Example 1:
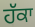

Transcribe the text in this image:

ਹੱਕਾ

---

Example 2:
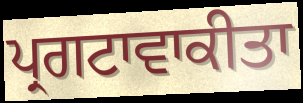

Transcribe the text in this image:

ਪ੍ਰਗਟਾਵਾਕੀਤਾ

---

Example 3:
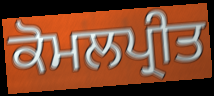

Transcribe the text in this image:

ਕੋਮਲਪ੍ਰੀਤ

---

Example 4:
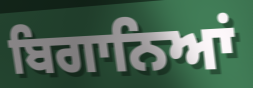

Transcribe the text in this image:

ਬਿਗਾਨਿਆਂ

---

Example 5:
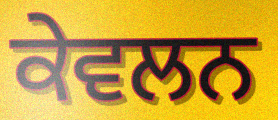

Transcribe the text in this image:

ਕੇਵਲਨ